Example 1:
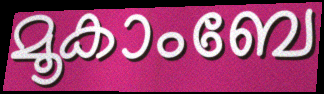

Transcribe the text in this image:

മൂകാംബേ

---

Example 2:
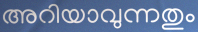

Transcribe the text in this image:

അറിയാവുന്നതും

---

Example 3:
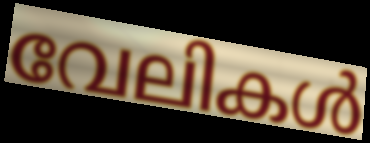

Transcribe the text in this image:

വേലികൾ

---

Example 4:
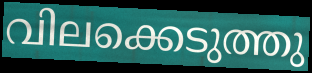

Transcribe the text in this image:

വിലക്കെടുത്തു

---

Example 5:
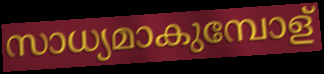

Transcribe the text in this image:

സാധ്യമാകുമ്പോള്